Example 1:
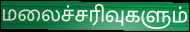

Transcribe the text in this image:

மலைச்சரிவுகளும்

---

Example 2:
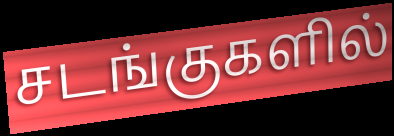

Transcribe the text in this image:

சடங்குகளில்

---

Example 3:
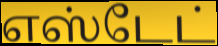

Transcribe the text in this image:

எஸ்டேட்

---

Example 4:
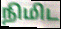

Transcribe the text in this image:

நிமிட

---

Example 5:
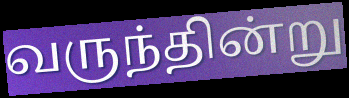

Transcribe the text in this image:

வருந்தின்று